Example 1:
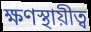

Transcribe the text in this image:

ক্ষণস্থায়ীত্ব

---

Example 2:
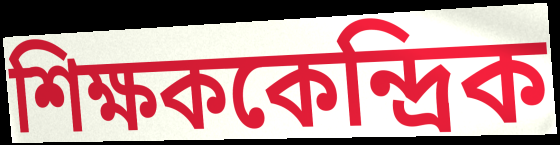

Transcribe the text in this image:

শিক্ষককেন্দ্রিক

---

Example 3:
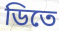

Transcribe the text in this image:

ডিতে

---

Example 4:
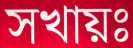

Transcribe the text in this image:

সখায়ঃ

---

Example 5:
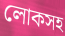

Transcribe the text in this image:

লোকসহ